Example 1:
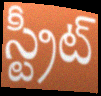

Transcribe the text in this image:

స్ట్రీట్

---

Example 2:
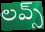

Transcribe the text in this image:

లవ్స్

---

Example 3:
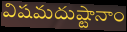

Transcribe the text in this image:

విషమదుష్టానాం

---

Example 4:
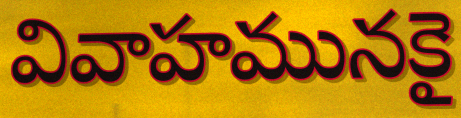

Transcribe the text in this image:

వివాహమునకై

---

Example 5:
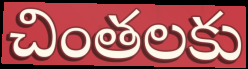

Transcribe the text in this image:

చింతలకు